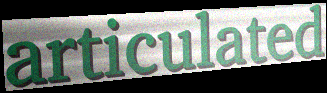
articulated